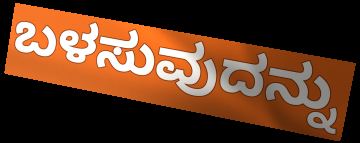
ಬಳಸುವುದನ್ನು